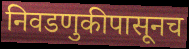
निवडणुकीपासूनच